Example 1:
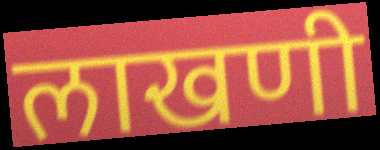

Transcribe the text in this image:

लाखणी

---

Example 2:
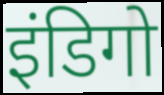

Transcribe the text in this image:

इंडिगो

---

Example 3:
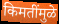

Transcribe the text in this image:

किमतींमुळे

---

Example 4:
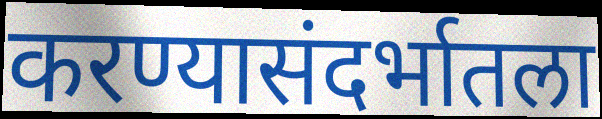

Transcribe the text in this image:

करण्यासंदर्भातला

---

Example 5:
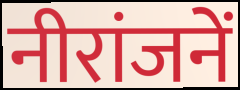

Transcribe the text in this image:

नीरांजनें